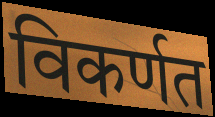
विकर्णत